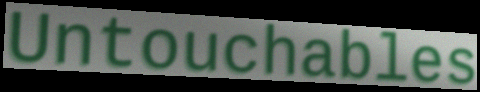
Untouchables